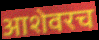
आशेवरच